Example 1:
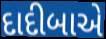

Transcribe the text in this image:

દાદીબાએ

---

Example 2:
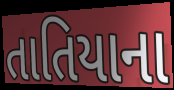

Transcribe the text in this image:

તાતિયાના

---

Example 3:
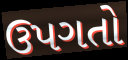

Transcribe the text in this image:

ઉપગતો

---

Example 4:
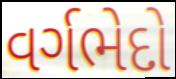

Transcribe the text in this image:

વર્ગભેદો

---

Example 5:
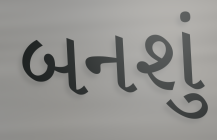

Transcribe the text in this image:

બનશું